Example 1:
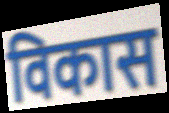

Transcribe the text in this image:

विकास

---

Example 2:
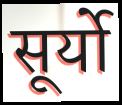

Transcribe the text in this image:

सूर्यो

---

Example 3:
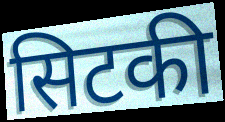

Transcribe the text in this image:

सिटकी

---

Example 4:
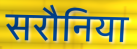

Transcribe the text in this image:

सरौनिया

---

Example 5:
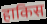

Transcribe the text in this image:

हाकिस